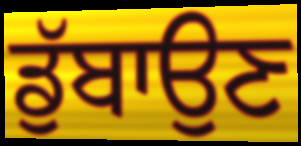
ਡੁੱਬਾਉਣ